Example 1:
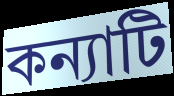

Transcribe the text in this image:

কন্যাটি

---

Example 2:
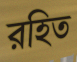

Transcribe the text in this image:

রহিত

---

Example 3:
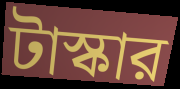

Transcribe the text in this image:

টাস্কার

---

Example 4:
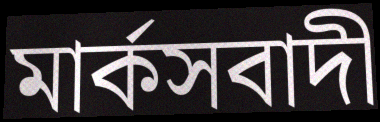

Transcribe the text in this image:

মার্কসবাদী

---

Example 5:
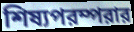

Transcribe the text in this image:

শিষ্যপরম্পরার